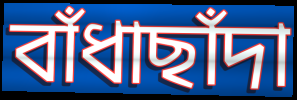
বাঁধাছাঁদা